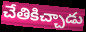
చేతికిచ్చాడు